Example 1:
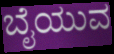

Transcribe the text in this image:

ಬೈಯುವ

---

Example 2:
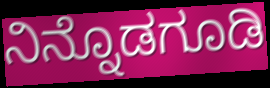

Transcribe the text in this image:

ನಿನ್ನೊಡಗೂಡಿ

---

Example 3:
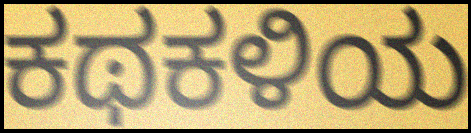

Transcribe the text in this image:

ಕಥಕಳಿಯ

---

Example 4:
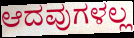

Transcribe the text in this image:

ಆದವುಗಳಲ್ಲ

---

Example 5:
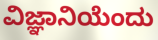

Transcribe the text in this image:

ವಿಜ್ಞಾನಿಯೆಂದು